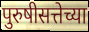
पुरुषीसत्तेच्या